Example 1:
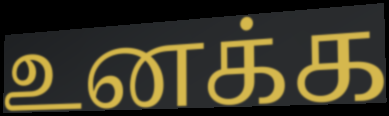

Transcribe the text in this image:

உனக்க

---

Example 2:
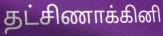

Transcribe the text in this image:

தட்சிணாக்கினி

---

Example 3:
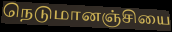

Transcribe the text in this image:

நெடுமானஞ்சியை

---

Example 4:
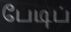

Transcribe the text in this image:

பேடிப்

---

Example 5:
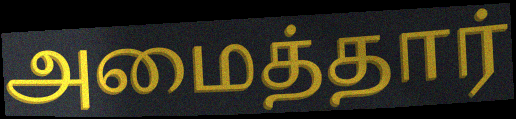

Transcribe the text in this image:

அமைத்தார்